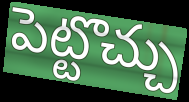
పెట్టొచ్చు